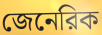
জেনেরিক